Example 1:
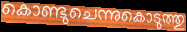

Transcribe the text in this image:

കൊണ്ടുചെന്നുകൊടുത്തു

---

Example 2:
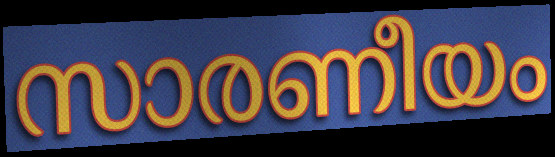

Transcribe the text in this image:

സാരണീയം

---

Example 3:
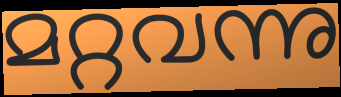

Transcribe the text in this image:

മറ്റവന്നു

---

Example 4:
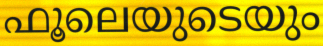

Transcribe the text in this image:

ഫൂലെയുടെയും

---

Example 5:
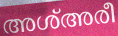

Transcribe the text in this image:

അശ്അരീ